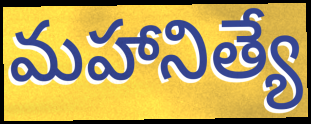
మహానిత్యే